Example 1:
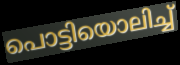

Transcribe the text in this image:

പൊട്ടിയൊലിച്ച്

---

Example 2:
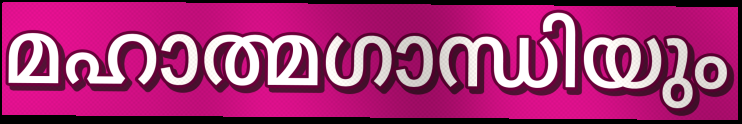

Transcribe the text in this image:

മഹാത്മഗാന്ധിയും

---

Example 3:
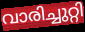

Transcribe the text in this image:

വാരിച്ചുറ്റി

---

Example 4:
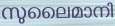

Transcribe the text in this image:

സുലൈമാനി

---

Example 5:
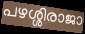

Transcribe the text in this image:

പഴശ്ശിരാജാ